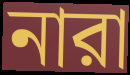
নারা